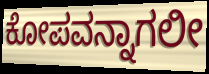
ಕೋಪವನ್ನಾಗಲೀ